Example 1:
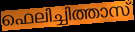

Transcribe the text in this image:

ഫെലിച്ചിത്താസ്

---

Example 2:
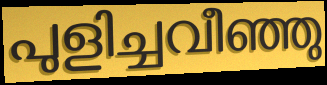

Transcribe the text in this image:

പുളിച്ചവീഞ്ഞു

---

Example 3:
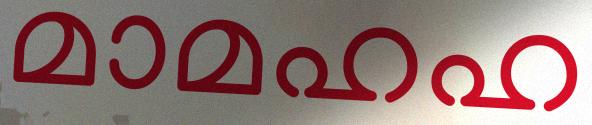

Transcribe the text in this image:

മാമഹഹ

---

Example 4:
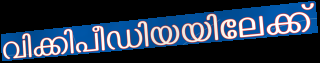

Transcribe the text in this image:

വിക്കിപീഡിയയിലേക്ക്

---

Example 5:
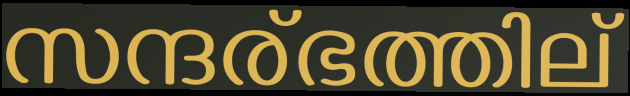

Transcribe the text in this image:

സന്ദര്ഭത്തില്